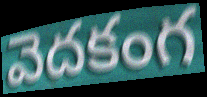
వెదకంగ